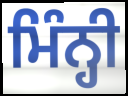
ਮਿੰਨ੍ਹੀ